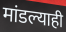
मांडल्याही